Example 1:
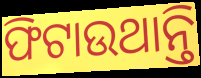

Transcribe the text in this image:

ଫିଟାଉଥାନ୍ତି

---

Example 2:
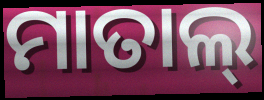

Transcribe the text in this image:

ମାତାଲ୍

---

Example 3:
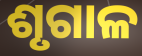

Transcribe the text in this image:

ଶୃଗାଳ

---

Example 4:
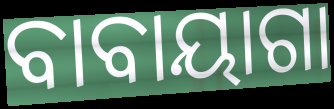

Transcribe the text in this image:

ବାବାୟାଗା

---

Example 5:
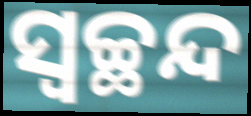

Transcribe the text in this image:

ସ୍ୱଚ୍ଛନ୍ଦ